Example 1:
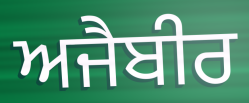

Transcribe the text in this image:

ਅਜੈਬੀਰ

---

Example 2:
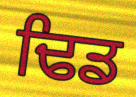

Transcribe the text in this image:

ਢਿਡ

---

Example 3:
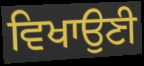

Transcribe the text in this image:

ਵਿਖਾਉਣੀ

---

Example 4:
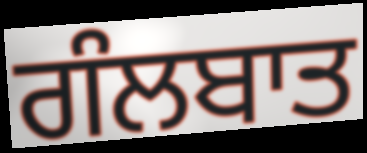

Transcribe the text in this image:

ਗੰਲਬਾਤ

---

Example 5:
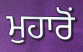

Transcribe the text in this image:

ਮੁਹਾਰੋਂ